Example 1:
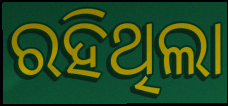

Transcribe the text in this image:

ରହିଥିଲା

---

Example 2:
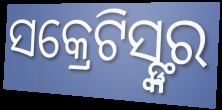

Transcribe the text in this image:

ସକ୍ରେଟିସ୍ଙ୍କର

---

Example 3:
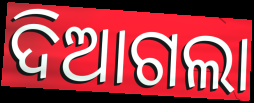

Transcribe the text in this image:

ଦିଆଗଲା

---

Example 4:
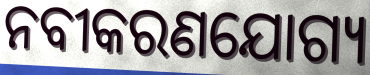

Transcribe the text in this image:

ନବୀକରଣଯୋଗ୍ୟ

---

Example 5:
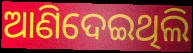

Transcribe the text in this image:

ଆଣିଦେଇଥିଲି